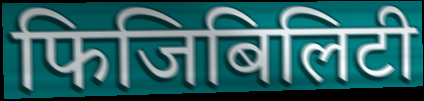
फिजिबिलिटी